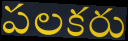
పలకరు